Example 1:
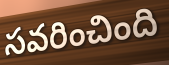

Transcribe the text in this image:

సవరించింది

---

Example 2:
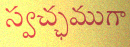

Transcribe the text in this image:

స్వచ్ఛముగా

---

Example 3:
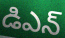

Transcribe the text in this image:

డిఎన్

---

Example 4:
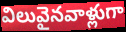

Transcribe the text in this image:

విలువైనవాళ్లుగా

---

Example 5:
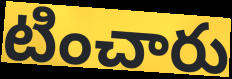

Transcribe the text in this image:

టించారు